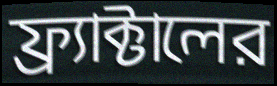
ফ্র্যাক্টালের